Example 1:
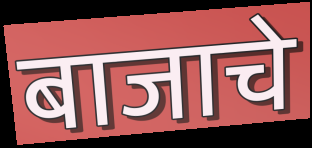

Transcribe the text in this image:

बाजाचे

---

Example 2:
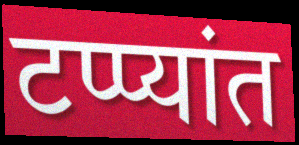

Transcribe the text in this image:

टप्प्यांत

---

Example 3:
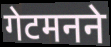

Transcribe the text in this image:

गेटमनने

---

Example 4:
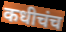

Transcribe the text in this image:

कधीचंच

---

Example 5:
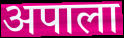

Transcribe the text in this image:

अपाला